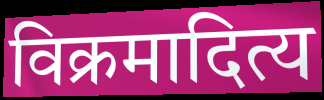
विक्रमादित्य